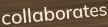
collaborates